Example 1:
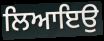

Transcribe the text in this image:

ਲਿਆਇਉ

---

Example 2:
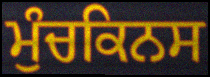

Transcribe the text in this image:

ਮੁੰਚਕਿਨਸ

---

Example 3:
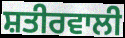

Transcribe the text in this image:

ਸ਼ਤੀਰਵਾਲੀ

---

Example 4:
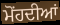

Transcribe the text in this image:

ਮੋਂਹਦੀਆਂ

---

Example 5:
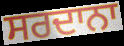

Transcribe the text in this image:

ਸਰਦਾਨਾ